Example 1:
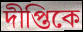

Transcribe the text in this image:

দীপ্তিকে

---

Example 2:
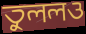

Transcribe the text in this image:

তুললও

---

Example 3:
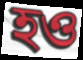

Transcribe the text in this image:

হও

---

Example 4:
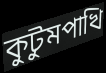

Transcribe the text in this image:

কুটুমপাখি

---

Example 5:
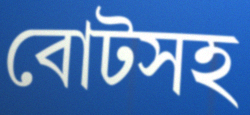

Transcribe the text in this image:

বোটসহ